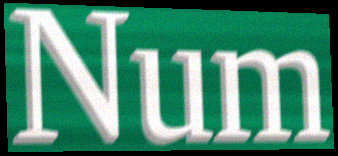
Num